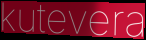
kutevera